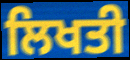
ਲਿਖਤੀ